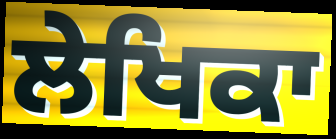
ਲੇਖਿਕਾ